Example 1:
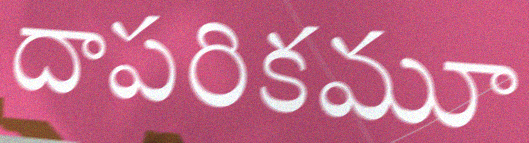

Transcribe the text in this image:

దాపరికమూ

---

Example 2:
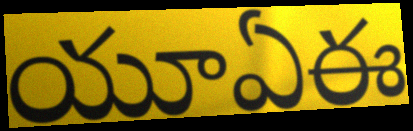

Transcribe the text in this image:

యూఏఈ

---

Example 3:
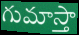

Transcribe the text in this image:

గుమాస్తా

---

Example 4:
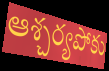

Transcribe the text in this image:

ఆశ్చర్యపోకు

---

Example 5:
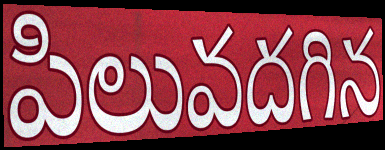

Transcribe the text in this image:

పిలువదగిన